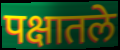
पक्षातले